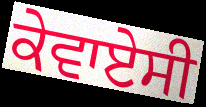
ਕੇਵਾਏਸੀ